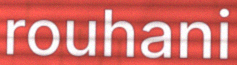
rouhani